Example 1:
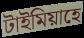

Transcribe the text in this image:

টাইমিয়াহে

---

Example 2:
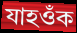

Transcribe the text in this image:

যাহওঁক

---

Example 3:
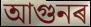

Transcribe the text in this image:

আগুনৰ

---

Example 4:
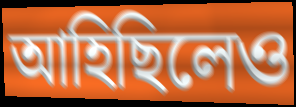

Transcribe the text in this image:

আহিছিলেও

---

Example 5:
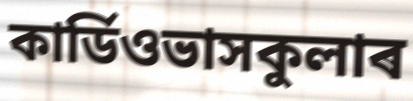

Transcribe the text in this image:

কাৰ্ডিওভাসকুলাৰ